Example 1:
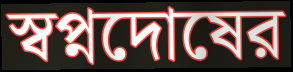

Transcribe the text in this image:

স্বপ্নদোষের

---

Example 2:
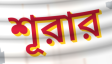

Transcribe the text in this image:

শূরার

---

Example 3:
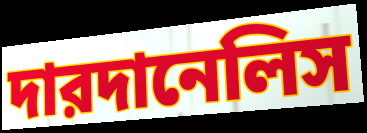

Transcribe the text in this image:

দারদানেলিস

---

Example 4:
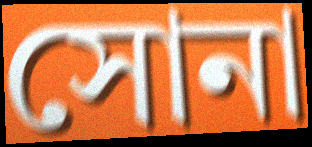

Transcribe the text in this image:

সোনা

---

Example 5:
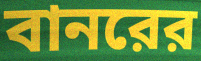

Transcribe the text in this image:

বানরের